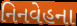
નિનવેહના